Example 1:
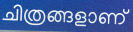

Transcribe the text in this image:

ചിത്രങ്ങളാണ്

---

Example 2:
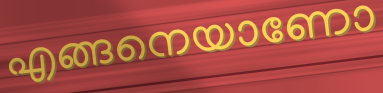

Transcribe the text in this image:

എങ്ങനെയാണോ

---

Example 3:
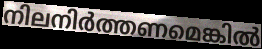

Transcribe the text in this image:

നിലനിർത്തണമെങ്കിൽ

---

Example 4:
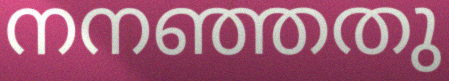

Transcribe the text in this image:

നനഞ്ഞതു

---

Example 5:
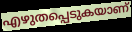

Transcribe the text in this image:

എഴുതപ്പെടുകയാണ്